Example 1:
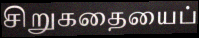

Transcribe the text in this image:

சிறுகதையைப்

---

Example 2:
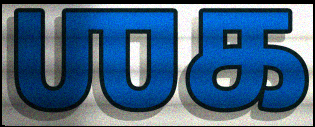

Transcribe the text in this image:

ஶக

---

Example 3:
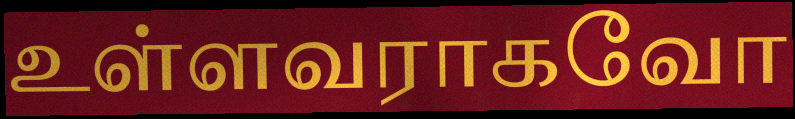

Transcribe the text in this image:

உள்ளவராகவோ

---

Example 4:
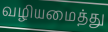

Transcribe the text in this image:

வழியமைத்து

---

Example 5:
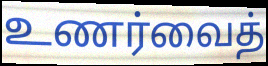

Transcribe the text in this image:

உணர்வைத்